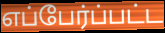
எப்பேர்ப்பட்ட